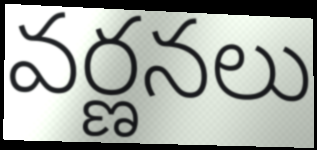
వర్ణనలు